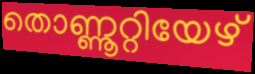
തൊണ്ണൂറ്റിയേഴ്